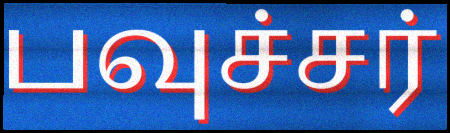
பவுச்சர்